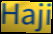
Haji